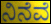
ನಿನೆವೆ